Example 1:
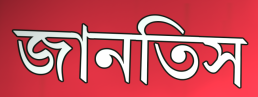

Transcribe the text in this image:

জানতিস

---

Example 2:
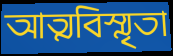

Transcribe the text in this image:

আত্মবিস্মৃতা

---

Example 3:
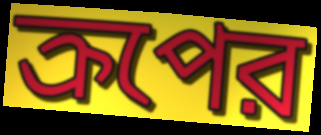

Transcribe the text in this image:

ক্রপের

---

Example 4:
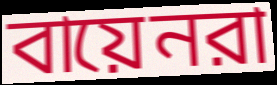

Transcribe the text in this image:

বায়েনরা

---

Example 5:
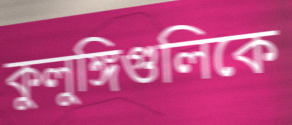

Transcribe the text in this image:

কুলুঙ্গিগুলিকে